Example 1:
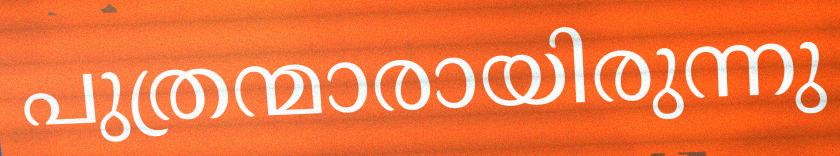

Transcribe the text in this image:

പുത്രന്മാരായിരുന്നു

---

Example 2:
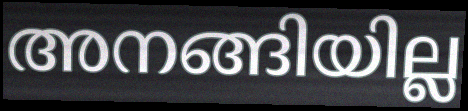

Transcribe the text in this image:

അനങ്ങിയില്ല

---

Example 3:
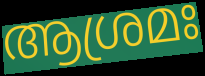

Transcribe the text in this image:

ആശ്രമഃ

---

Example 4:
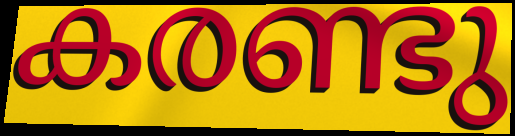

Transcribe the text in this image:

കരണ്ടു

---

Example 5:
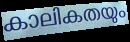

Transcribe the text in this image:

കാലികതയും